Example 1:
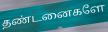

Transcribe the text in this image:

தண்டனைகளே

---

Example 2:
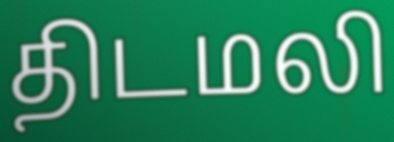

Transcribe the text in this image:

திடமலி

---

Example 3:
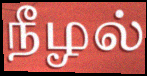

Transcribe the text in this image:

நீழல்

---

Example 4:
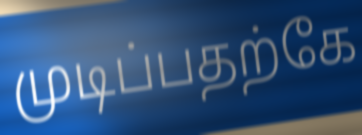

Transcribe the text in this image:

முடிப்பதற்கே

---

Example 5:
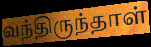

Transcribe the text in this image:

வந்திருந்தாள்